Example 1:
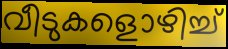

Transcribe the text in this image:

വീടുകളൊഴിച്ച്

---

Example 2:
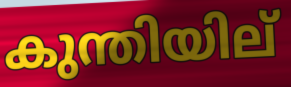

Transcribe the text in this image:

കുന്തിയില്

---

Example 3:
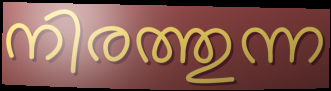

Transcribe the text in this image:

നിരത്തുന്ന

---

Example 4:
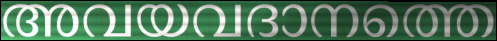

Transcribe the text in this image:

അവയവദാനത്തെ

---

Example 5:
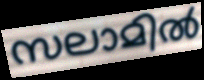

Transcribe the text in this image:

സലാമിൽ